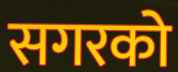
सगरको